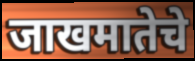
जाखमातेचे